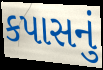
કપાસનું